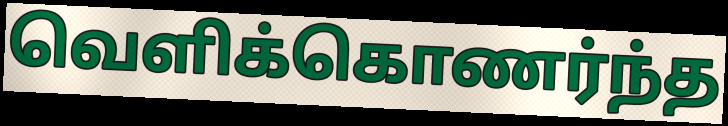
வெளிக்கொணர்ந்த